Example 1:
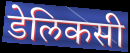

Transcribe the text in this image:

डेलिकसी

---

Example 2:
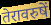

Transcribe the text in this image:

तेरावरुषें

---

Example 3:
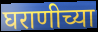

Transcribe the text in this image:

घराणीच्या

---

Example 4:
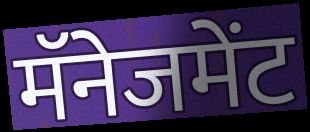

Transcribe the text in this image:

मॅनेजमेंट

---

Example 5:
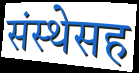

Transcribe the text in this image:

संस्थेसह